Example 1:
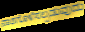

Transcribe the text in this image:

ನಾಶಗೊಳಿಸಲ್ಪಡುವುದು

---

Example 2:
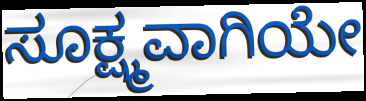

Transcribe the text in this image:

ಸೂಕ್ಷ್ಮವಾಗಿಯೇ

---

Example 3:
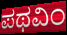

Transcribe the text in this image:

ಪಥವಿಂ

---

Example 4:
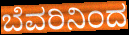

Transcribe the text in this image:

ಬೆವರಿನಿಂದ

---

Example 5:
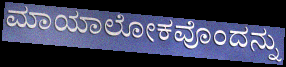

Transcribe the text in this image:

ಮಾಯಾಲೋಕವೊಂದನ್ನು